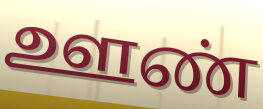
ஊண்